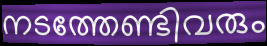
നടത്തേണ്ടിവരും